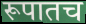
रूपातच